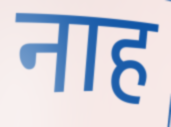
नाह